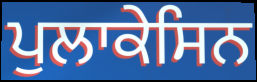
ਪੁਲਾਕੇਸਿਨ